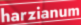
harzianum